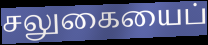
சலுகையைப்